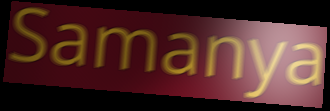
Samanya